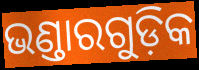
ଭଣ୍ଡାରଗୁଡ଼ିକ